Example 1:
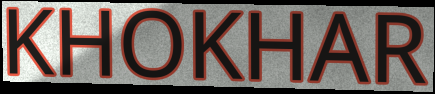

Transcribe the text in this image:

KHOKHAR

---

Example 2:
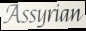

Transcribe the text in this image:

Assyrian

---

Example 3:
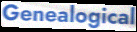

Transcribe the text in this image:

Genealogical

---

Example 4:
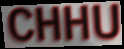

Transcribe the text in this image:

CHHU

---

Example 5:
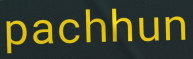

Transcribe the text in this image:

pachhun